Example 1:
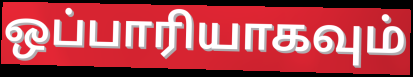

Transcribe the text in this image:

ஒப்பாரியாகவும்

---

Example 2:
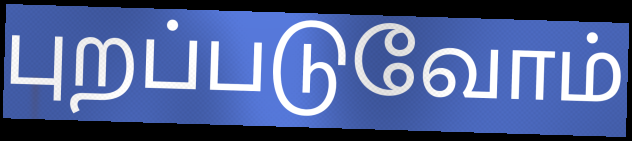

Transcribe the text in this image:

புறப்படுவோம்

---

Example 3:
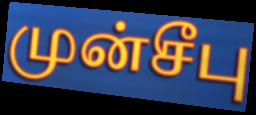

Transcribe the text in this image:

முன்சீபு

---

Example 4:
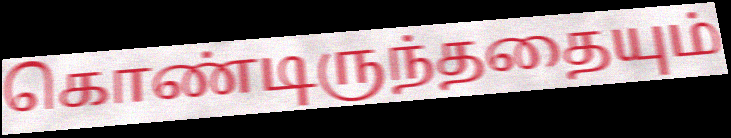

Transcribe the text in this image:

கொண்டிருந்ததையும்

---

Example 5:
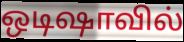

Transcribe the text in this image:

ஒடிஷாவில்